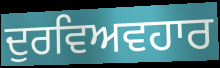
ਦੁਰਵਿਅਵਹਾਰ